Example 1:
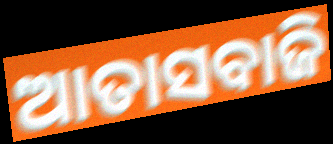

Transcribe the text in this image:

ଆତାସବାଜି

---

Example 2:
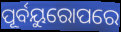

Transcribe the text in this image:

ପୂର୍ବୟୁରୋପରେ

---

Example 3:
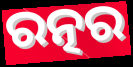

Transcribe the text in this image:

ରତ୍ନର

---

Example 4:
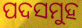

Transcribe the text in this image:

ପଦସମୁହ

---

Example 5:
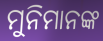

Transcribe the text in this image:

ମୁନିମାନଙ୍କ